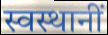
स्वस्थानीं